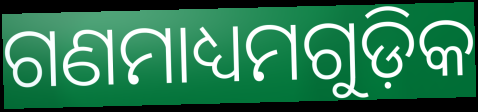
ଗଣମାଧ୍ୟମଗୁଡ଼ିକ